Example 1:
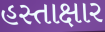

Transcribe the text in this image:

હસ્તાક્ષાર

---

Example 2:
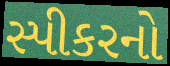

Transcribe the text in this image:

સ્પીકરનો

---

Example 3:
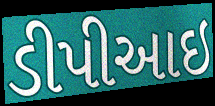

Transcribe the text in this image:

ડીપીઆઇ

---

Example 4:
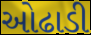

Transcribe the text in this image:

ઓઢાડી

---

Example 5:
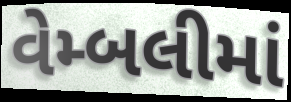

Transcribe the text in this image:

વેમ્બલીમાં